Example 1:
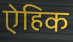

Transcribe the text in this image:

ऐहिक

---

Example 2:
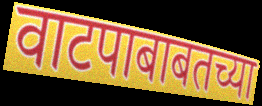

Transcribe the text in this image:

वाटपाबाबतच्या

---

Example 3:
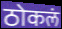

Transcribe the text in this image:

ठोकलं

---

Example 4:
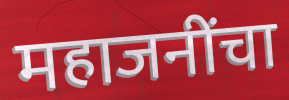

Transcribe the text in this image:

महाजनींचा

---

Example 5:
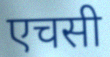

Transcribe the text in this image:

एचसी